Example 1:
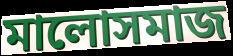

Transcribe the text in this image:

মালোসমাজ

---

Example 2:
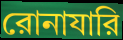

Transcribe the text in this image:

রোনাযারি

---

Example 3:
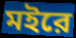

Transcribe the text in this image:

মইরে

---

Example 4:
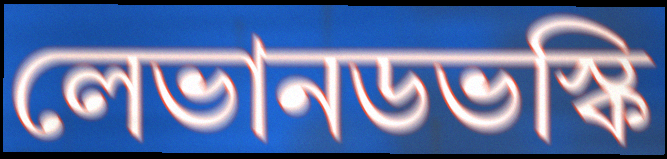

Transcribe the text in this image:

লেভানডভস্কি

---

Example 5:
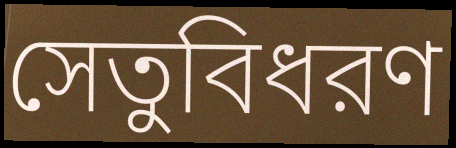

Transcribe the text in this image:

সেতুবিধরণ